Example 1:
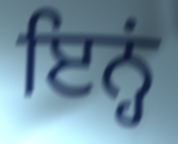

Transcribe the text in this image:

ਇਨ੍ਹਂ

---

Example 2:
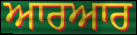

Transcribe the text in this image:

ਆਰਆਰ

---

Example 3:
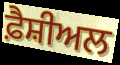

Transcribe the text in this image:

ਫ਼ੈਸ਼ੀਅਲ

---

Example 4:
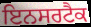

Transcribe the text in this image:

ਇਨਸਰਟੈਕ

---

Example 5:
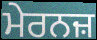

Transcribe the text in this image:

ਮੇਰਨਜ਼